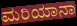
ಮರಿಯಾನಾ